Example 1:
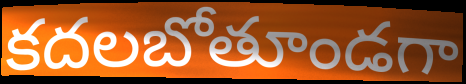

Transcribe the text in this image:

కదలబోతూండగా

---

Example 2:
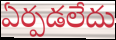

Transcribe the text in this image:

ఏర్పడలేదు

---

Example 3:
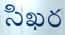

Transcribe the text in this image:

సిఖర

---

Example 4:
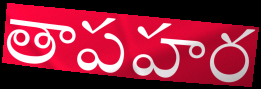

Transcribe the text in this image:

తాపహర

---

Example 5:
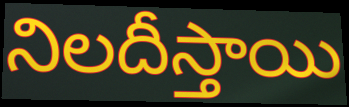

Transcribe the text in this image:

నిలదీస్తాయి